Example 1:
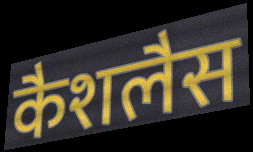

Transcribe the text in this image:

कैशलैस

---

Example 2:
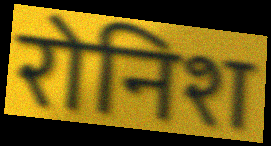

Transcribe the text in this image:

रोनिश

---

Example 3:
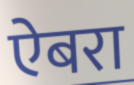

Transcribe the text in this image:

ऐबरा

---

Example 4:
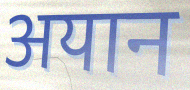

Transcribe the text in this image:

अयान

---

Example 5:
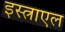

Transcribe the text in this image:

इस्त्राएल